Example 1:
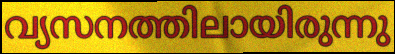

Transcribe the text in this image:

വ്യസനത്തിലായിരുന്നു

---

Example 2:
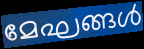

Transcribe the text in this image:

മേഘങ്ങൾ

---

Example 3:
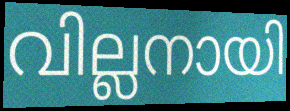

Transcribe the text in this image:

വില്ലനായി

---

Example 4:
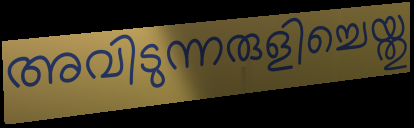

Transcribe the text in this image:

അവിടുന്നരുളിച്ചെയ്തു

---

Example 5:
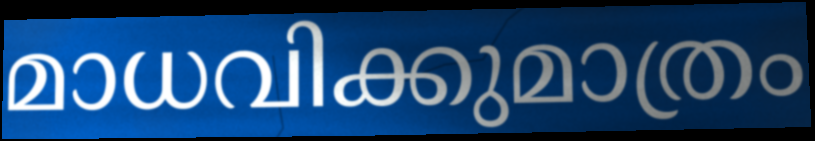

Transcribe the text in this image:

മാധവിക്കുമാത്രം